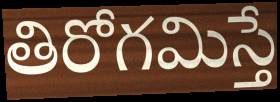
తిరోగమిస్తే